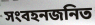
সংবহনজনিত